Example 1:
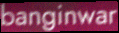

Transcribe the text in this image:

banginwar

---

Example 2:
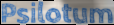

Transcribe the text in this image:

Psilotum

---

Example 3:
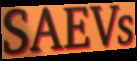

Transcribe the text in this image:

SAEVs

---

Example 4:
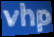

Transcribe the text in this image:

vhp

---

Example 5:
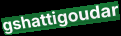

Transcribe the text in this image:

gshattigoudar